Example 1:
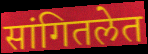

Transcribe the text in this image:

सांगितलेत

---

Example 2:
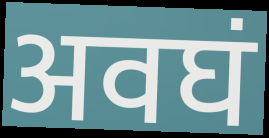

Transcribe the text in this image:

अवघं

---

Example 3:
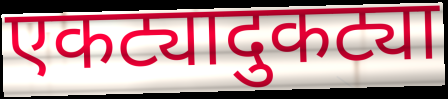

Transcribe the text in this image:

एकट्यादुकट्या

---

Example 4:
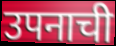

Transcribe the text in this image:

उपनाची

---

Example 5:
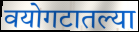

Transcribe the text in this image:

वयोगटातल्या